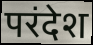
परंदेश